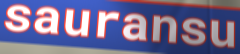
sauransu